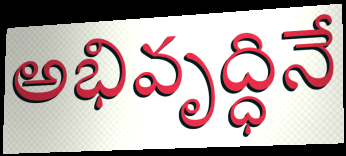
అభివృద్ధినే